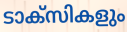
ടാക്സികളും